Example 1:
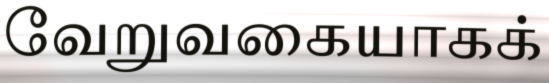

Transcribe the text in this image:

வேறுவகையாகக்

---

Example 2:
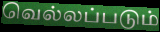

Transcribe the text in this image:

வெல்லப்படும்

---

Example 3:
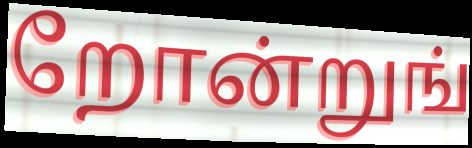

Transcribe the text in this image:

றோன்றுங்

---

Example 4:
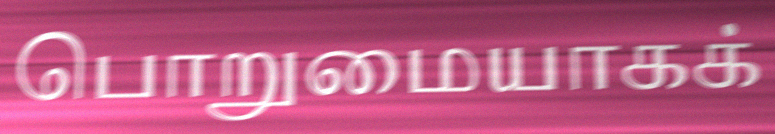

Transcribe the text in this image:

பொறுமையாகக்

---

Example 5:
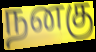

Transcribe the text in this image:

நனகு